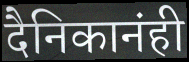
दैनिकानंही